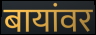
बायांवर